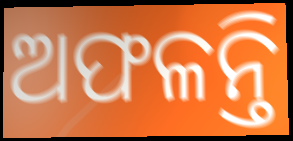
ଅଫଳନ୍ତି